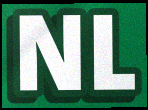
NL